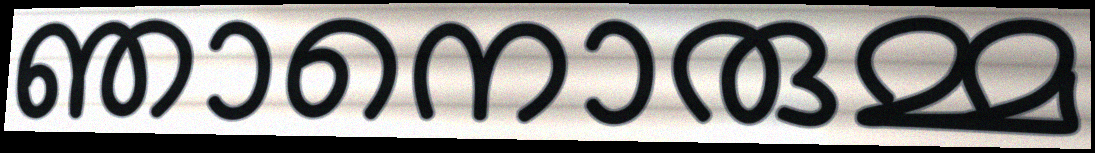
ഞാനൊരുമ്മ